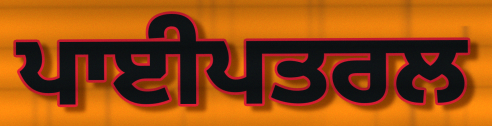
ਪਾਈਪਤਰਲ